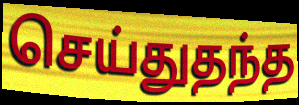
செய்துதந்த